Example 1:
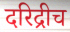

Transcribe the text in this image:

दरिद्रीच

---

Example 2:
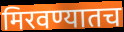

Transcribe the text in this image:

मिरवण्यातच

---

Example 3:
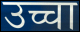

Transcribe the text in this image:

उच्चा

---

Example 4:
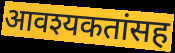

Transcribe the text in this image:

आवश्यकतांसह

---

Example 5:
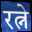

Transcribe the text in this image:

रत्ने